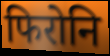
फिरोनि